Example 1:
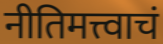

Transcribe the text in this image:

नीतिमत्त्वाचं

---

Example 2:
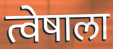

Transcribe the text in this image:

त्वेषाला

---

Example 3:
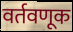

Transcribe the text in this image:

वर्तवणूक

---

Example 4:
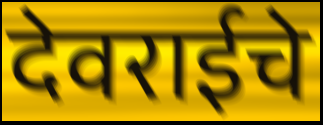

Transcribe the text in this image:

देवराईचे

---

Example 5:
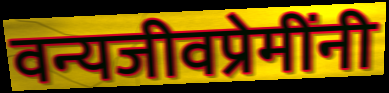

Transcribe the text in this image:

वन्यजीवप्रेमींनी